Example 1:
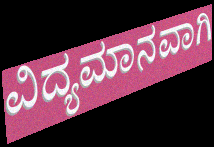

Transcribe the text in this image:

ವಿದ್ಯಮಾನವಾಗಿ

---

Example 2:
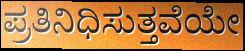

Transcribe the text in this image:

ಪ್ರತಿನಿಧಿಸುತ್ತವೆಯೇ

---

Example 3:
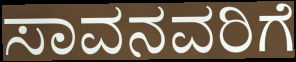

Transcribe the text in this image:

ಸಾವನವರಿಗೆ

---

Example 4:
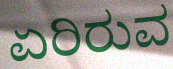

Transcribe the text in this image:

ಏರಿರುವ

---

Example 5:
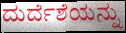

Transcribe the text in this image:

ದುರ್ದೆಶೆಯನ್ನು